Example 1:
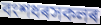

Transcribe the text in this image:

বংশধৰসকলৰ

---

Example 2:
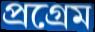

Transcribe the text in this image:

প্ৰগ্ৰেম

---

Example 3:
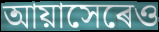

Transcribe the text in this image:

আয়াসেৰেও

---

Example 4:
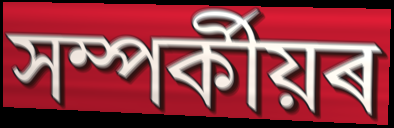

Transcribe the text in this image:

সম্পৰ্কীয়ৰ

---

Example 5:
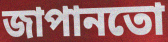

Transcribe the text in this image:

জাপানতো